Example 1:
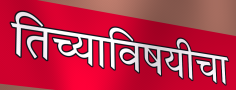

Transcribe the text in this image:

तिच्याविषयीचा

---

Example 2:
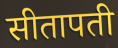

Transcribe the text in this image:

सीतापती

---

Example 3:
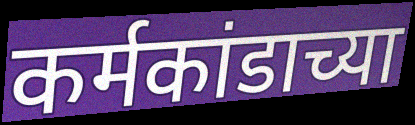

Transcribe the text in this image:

कर्मकांडाच्या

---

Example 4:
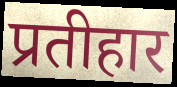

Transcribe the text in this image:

प्रतीहार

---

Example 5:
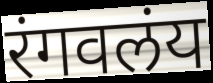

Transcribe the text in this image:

रंगवलंय